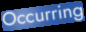
Occurring